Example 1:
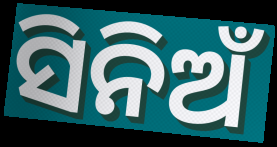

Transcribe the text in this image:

ସିନିଅଁ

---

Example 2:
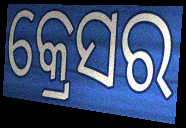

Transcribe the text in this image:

କ୍ରେସର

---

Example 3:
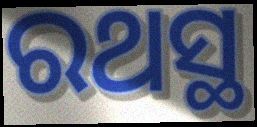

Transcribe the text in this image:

ରଥସ୍ଥ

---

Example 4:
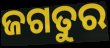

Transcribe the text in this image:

ଜଗତୁର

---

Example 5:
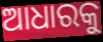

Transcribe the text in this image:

ଆଧାରକୁ